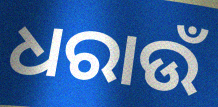
ଧରାଉଁ